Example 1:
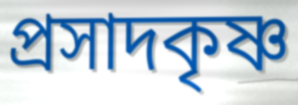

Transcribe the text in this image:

প্রসাদকৃষ্ণ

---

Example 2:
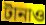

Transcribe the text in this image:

টানাও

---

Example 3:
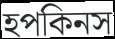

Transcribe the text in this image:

হপকিনস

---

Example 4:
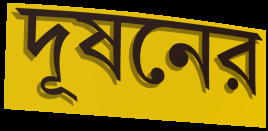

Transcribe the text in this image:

দূষনের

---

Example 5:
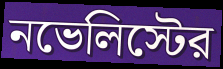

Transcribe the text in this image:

নভেলিস্টের